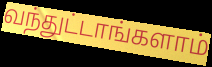
வந்துட்டாங்களாம்